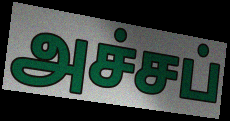
அச்சப்